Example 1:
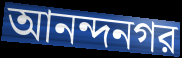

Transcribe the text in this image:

আনন্দনগর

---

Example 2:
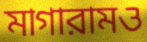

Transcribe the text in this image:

মাগারামও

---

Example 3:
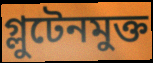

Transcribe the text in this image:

গ্লুটেনমুক্ত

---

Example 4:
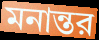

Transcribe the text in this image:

মনান্তর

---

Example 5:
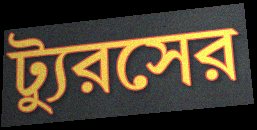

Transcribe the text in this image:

ট্যুরসের